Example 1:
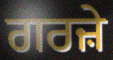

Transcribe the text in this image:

ਗਰਜ਼ੇ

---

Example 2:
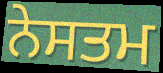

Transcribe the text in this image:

ਨੇਸਤਮ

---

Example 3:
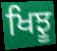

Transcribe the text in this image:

ਖਿਝੂ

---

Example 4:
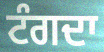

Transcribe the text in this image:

ਟੰਗਦਾ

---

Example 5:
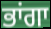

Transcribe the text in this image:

ਭਾਂਗਾ